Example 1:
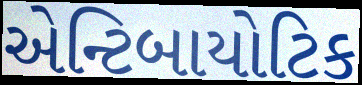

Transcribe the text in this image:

એન્ટિબાયોટિક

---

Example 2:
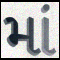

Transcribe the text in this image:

માં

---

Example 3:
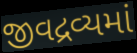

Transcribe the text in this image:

જીવદ્રવ્યમાં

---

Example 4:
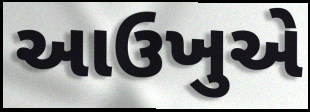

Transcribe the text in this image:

આઉખુએ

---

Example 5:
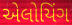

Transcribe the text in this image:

એલોયિંગ